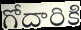
గోదారికి